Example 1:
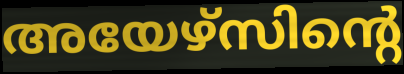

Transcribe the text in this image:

അയേഴ്സിന്റെ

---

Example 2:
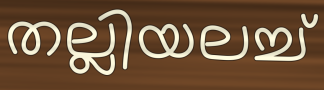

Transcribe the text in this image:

തല്ലിയലച്ച്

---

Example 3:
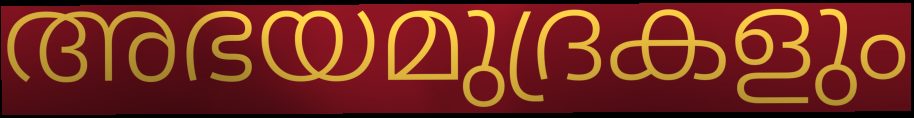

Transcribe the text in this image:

അഭയമുദ്രകളും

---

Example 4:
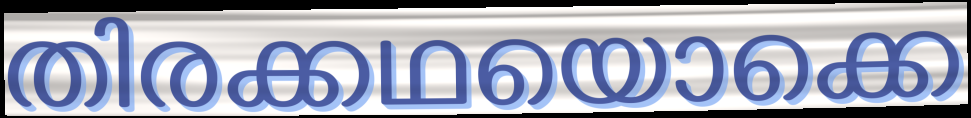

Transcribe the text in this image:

തിരക്കഥയൊക്കെ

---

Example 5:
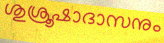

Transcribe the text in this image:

ശുശ്രൂഷാദാസനും